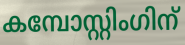
കമ്പോസ്റ്റിംഗിന്